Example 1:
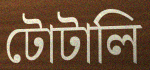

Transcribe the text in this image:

টোটালি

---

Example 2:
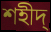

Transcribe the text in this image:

শহীদ্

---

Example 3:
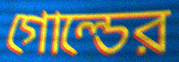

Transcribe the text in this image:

গোল্ডের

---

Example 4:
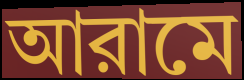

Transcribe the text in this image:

আরামে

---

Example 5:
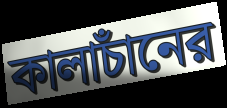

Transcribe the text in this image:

কালাচাঁনের